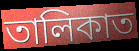
তালিকাত